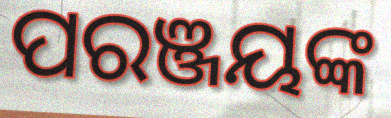
ପରଞ୍ଜୟଙ୍କ